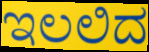
ಇಲಲಿದ